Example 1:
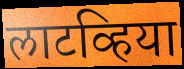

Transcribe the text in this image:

लाटव्हिया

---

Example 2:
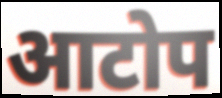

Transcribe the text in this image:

आटोप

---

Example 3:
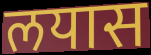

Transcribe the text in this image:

लयास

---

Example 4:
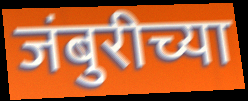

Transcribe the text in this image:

जंबुरीच्या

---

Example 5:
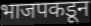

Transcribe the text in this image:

भाजपकडून